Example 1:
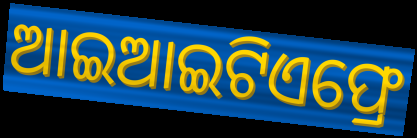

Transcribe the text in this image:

ଆଇଆଇଟିଏଫ୍ରେ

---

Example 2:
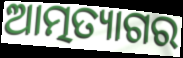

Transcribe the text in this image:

ଆତ୍ମତ୍ୟାଗର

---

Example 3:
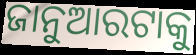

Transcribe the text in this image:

ଜାନୁଆରଟାକୁ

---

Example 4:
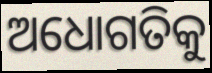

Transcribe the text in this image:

ଅଧୋଗତିକୁ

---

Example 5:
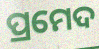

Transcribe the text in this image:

ପ୍ରମେଦ